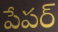
పేపర్